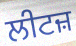
ਲੀਟਜ਼